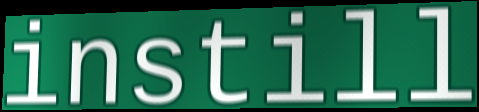
instill